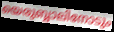
യെരുബ്ബാലിനോടും